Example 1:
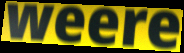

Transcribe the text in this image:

weere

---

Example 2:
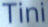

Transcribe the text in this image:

Tini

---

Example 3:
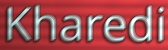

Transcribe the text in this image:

Kharedi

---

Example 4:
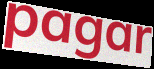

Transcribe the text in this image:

pagar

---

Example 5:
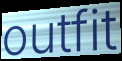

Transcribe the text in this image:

outfit